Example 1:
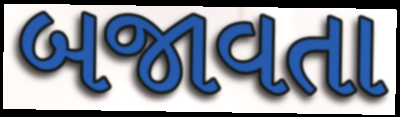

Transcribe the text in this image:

બજાવતા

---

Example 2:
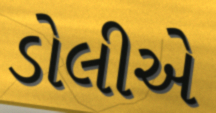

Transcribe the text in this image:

ડોલીએ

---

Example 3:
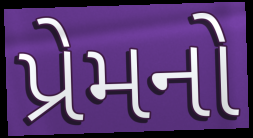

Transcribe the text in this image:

પ્રેમનો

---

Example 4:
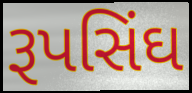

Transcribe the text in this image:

રૂપસિંઘ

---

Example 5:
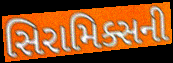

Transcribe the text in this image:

સિરામિક્સની